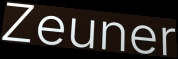
Zeuner